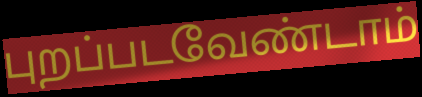
புறப்படவேண்டாம்